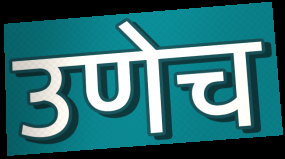
उणेच